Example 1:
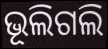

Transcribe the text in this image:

ଭୂଲିଗଲି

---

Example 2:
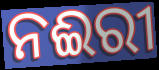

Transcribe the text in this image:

ନଈରୀ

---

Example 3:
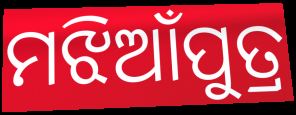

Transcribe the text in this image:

ମଝିଆଁପୁତ୍ର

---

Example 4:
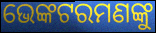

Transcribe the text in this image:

ଭେଙ୍କଟରମଣଙ୍କୁ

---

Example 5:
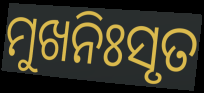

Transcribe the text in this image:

ମୁଖନିଃସୃତ